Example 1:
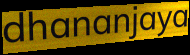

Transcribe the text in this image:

dhananjaya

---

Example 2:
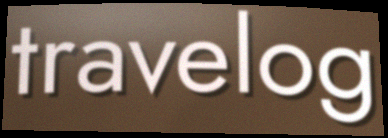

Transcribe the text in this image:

travelog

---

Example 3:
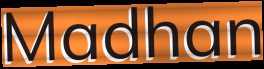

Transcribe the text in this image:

Madhan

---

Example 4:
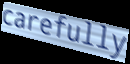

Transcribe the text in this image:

carefully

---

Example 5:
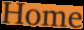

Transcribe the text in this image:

Home